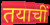
तयाचीं